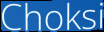
Choksi